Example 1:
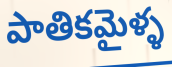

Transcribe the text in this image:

పాతికమైళ్ళ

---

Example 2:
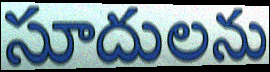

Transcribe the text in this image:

సూదులను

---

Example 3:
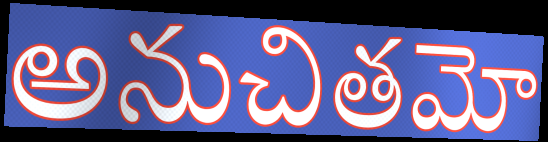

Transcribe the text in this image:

అనుచితమో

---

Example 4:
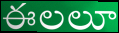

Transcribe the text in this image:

ఈలలూ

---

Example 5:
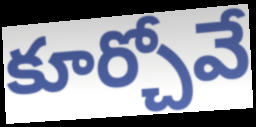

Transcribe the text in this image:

కూర్చోవే